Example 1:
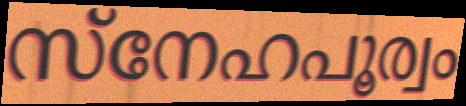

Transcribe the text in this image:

സ്നേഹപൂര്വം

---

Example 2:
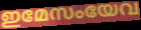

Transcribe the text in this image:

ഇമേസംയേവ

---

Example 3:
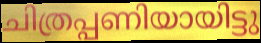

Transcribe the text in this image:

ചിത്രപ്പണിയായിട്ടു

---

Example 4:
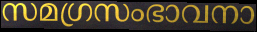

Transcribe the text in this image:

സമഗ്രസംഭാവനാ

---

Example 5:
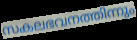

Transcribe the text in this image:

സകലഭവനത്തിന്നും